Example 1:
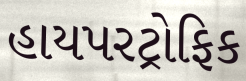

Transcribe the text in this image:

હાયપરટ્રોફિક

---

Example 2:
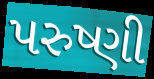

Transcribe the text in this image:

પરુષ્ણી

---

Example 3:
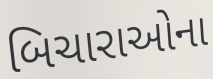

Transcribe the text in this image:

બિચારાઓના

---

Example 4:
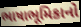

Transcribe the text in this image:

ભાષાભૂમિકાનો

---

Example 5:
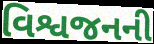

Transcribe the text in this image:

વિશ્વજનની